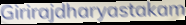
Girirajdharyastakam